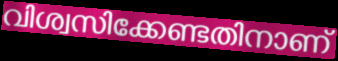
വിശ്വസിക്കേണ്ടതിനാണ്